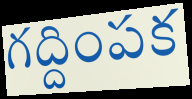
గద్దింపక